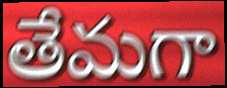
తేమగా